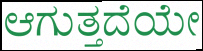
ಆಗುತ್ತದೆಯೇ